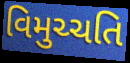
વિમુચ્ચતિ